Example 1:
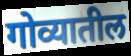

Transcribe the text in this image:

गोव्यातील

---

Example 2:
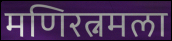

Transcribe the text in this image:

मणिरत्नमला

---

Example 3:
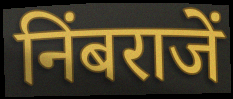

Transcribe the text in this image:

निंबराजें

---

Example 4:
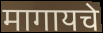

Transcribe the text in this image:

मागायचे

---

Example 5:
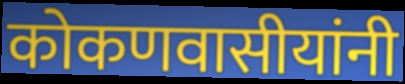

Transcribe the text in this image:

कोकणवासीयांनी